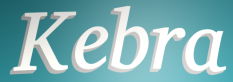
Kebra